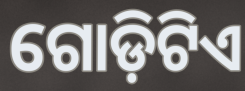
ଗୋଡ଼ିଟିଏ